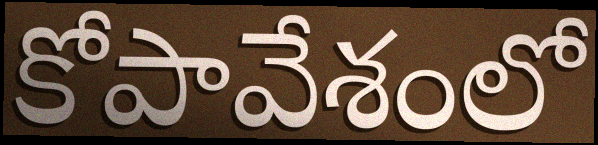
కోపావేశంలో